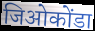
जिओकोंडा